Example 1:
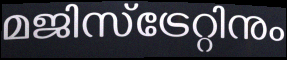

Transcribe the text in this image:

മജിസ്ട്രേറ്റിനും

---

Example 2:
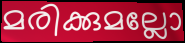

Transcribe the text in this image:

മരിക്കുമല്ലോ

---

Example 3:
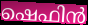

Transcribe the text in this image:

ഷെഫിൻ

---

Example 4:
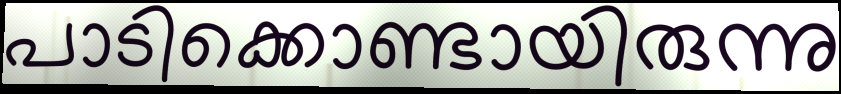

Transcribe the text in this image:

പാടിക്കൊണ്ടായിരുന്നു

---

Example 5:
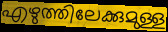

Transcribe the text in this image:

എഴുത്തിലേക്കുമുള്ള